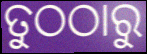
ତୁଠଠାରୁ